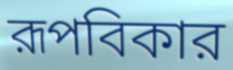
রূপবিকার